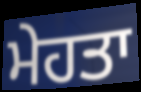
ਮੇਹਤਾ